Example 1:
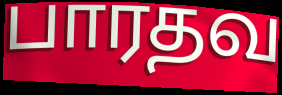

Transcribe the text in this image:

பாரதவ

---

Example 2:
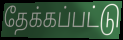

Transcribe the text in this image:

தேக்கப்பட்டு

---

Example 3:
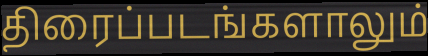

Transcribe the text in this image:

திரைப்படங்களாலும்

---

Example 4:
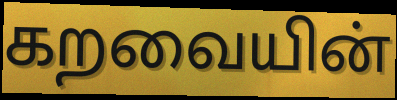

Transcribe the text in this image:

கறவையின்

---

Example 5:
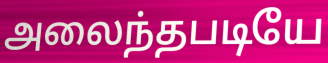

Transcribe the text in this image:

அலைந்தபடியே